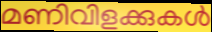
മണിവിളക്കുകൾ